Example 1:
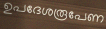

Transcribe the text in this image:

ഉപദേശരൂപേണ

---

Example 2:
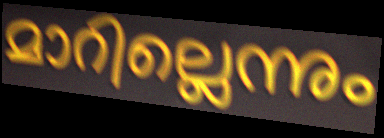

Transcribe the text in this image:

മാറില്ലെന്നും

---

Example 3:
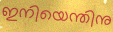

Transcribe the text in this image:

ഇനിയെന്തിനു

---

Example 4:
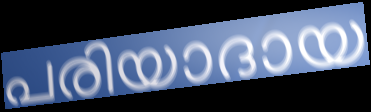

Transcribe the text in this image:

പരിയാദായ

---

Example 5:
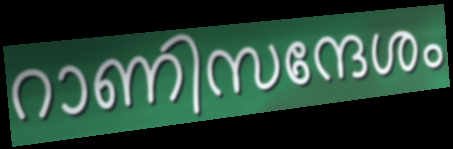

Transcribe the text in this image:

റാണിസന്ദേശം